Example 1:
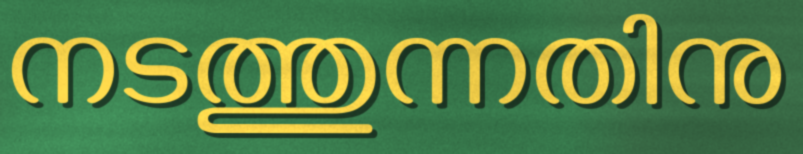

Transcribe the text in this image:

നടത്തുന്നതിനു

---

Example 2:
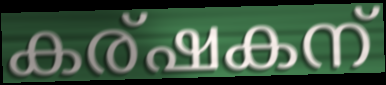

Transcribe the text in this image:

കര്ഷകന്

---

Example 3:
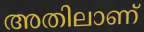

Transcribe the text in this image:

അതിലാണ്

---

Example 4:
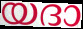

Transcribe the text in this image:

യദാ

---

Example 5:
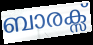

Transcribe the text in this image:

ബാരക്സ്